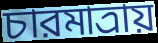
চারমাত্রায়